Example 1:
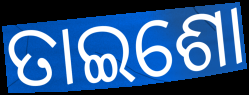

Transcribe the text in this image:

ତାଇଶୋ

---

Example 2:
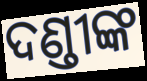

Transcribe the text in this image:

ଦଣ୍ଡୀଙ୍କ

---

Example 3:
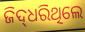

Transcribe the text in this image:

ଜିଦ୍‌ଧରିଥିଲେ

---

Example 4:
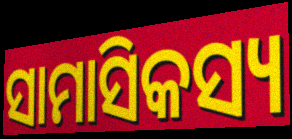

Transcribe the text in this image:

ସାମାସିକସ୍ୟ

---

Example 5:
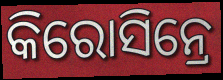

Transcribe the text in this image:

କିରୋସିନ୍ରେ